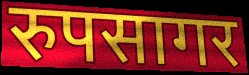
रुपसागर